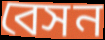
বেসন